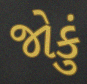
જોકું